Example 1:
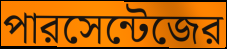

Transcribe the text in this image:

পারসেন্টেজের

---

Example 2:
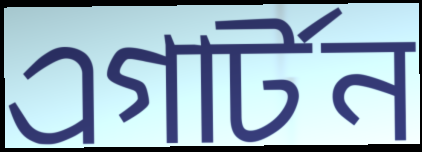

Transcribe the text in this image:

এগার্টন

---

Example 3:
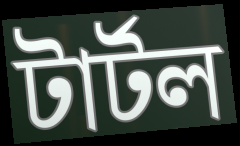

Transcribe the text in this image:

টার্টল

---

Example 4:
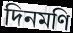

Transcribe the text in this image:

দিনমণি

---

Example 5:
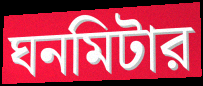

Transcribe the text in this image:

ঘনমিটার